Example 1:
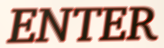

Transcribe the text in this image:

ENTER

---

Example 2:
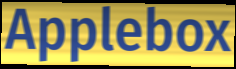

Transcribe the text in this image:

Applebox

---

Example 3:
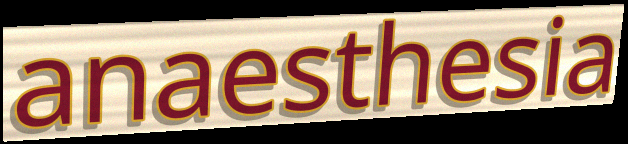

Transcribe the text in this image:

anaesthesia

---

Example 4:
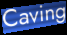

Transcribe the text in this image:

Caving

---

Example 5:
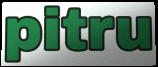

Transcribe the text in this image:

pitru